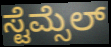
ಸ್ಟೆಮ್ಸೆಲ್